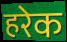
हरेक